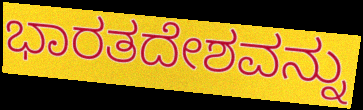
ಭಾರತದೇಶವನ್ನು